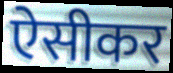
ऐसीकर